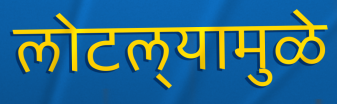
लोटल्यामुळे